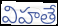
విహతే